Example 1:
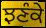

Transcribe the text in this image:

ਝਣੰਕੇ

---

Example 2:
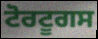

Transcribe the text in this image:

ਟੋਰਟੂਗਸ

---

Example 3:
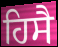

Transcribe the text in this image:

ਹਿਸੈ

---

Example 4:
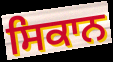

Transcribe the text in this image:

ਸਿਕਾਨ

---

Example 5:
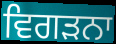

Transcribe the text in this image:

ਵਿਗੜਨਾ